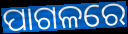
ପାଗଳରେ